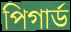
পিগার্ড